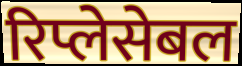
रिप्लेसेबल